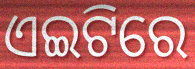
ଏଇଟିରେ